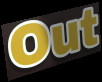
Out